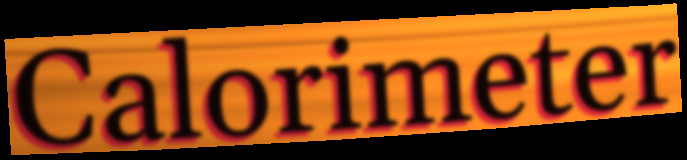
Calorimeter